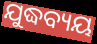
ଯୁଦ୍ଧବ୍ୟୟ